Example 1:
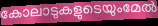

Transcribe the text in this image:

കോലാടുകളുടെയുംമേൽ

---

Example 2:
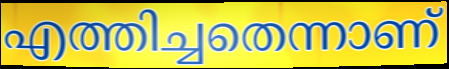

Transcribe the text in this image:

എത്തിച്ചതെന്നാണ്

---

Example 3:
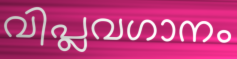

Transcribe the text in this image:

വിപ്ലവഗാനം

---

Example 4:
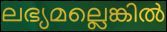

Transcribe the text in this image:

ലഭ്യമല്ലെങ്കിൽ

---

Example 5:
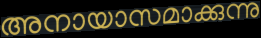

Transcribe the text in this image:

അനായാസമാക്കുന്നു